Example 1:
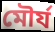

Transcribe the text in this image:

মৌর্য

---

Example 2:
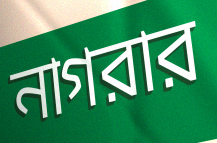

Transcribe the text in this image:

নাগরার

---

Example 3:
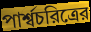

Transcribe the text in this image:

পার্শ্বচরিত্রের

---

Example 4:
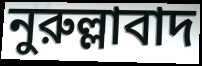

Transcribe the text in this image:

নুরুল্লাবাদ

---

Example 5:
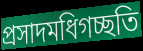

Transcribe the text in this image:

প্রসাদমধিগচ্ছতি